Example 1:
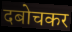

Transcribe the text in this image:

दबोचकर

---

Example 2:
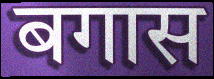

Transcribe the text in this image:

बगास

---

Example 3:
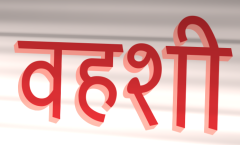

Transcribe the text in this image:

वहशी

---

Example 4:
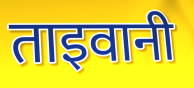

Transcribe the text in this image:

ताइवानी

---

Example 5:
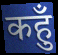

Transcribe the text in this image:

कहुँ